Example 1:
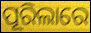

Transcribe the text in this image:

ପୂରିଲାରେ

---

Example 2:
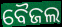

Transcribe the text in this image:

ବୈଜଲ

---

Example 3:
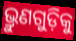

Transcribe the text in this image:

ଭ୍ରୁଣଗୁଡ଼ିକୁ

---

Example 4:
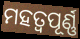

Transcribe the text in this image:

ମହତ୍ବପୂର୍ଣ୍ଣ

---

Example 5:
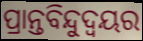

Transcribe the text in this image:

ପ୍ରାନ୍ତବିନ୍ଦୁଦ୍ଵୟର